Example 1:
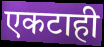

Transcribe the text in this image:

एकटाही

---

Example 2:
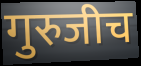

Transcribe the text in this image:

गुरुजीच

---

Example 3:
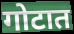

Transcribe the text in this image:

गोटात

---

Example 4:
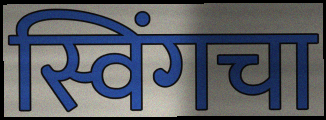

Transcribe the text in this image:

स्विंगचा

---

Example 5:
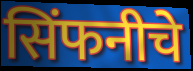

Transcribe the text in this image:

सिंफनीचे